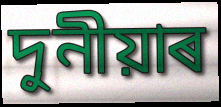
দুনীয়াৰ